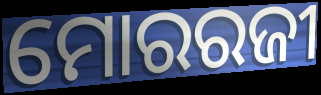
ମୋରରଜୀ